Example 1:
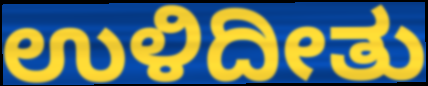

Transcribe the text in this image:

ಉಳಿದೀತು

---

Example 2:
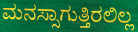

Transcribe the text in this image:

ಮನಸ್ಸಾಗುತ್ತಿರಲಿಲ್ಲ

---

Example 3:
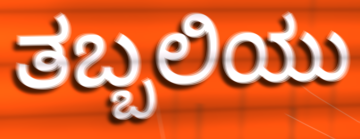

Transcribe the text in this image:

ತಬ್ಬಲಿಯು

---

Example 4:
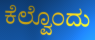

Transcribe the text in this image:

ಕೆಲ್ವೊಂದು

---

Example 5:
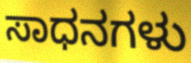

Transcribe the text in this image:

ಸಾಧನಗಳು